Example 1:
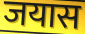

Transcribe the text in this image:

जयास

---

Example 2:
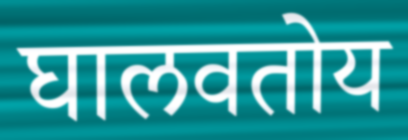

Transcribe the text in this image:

घालवतोय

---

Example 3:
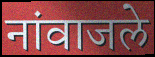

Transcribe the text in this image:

नांवाजले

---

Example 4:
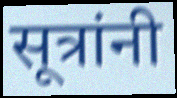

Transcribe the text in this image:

सूत्रांनी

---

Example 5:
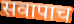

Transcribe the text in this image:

सवापाच